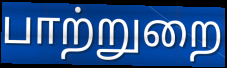
பாற்றுறை